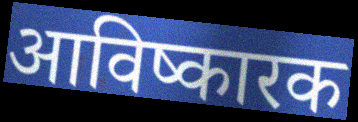
आविष्कारक